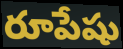
రూపేషు